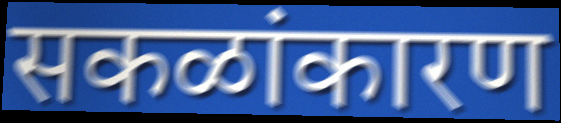
सकळांकारण